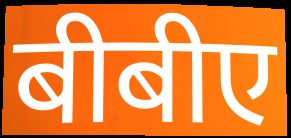
बीबीए